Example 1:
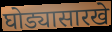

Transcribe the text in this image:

घोड्यासारखे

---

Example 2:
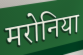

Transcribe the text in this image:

मरोनिया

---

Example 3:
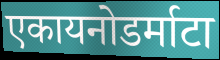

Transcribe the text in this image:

एकायनोडर्माटा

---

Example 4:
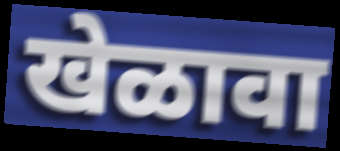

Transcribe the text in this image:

खेळावा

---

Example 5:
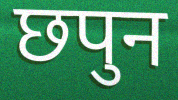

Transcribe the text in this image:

छपुन